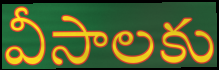
వీసాలకు